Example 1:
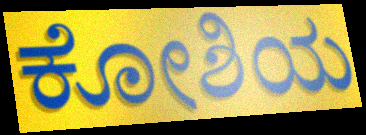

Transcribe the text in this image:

ಕೋಶಿಯ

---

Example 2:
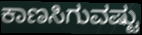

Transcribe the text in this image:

ಕಾಣಸಿಗುವಷ್ಟು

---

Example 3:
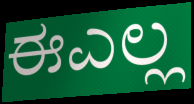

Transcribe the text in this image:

ಈಎಲ್ಲ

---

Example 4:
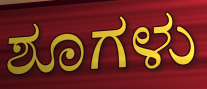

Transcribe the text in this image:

ಶೂಗಳು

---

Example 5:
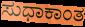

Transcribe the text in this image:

ಸುಧಾಕಾಂತ